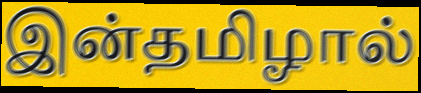
இன்தமிழால்